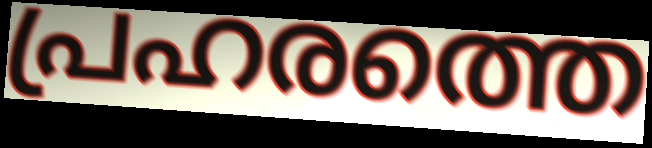
പ്രഹരത്തെ